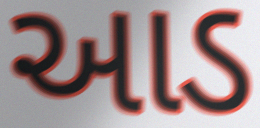
આડ